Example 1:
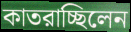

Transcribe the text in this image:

কাতরাচ্ছিলেন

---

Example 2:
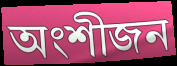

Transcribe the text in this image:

অংশীজন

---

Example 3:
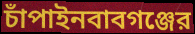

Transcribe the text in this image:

চাঁপাইনবাবগঞ্জের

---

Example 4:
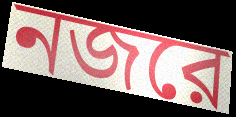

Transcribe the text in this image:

নজরে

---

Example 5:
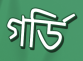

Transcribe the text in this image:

গর্ডি